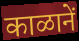
काळानें